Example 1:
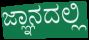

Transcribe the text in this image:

ಜ್ಞಾನದಲ್ಲಿ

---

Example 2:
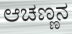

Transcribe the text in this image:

ಆಚಣ್ಣನ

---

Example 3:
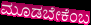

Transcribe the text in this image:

ಮೂಡಬೇಕೆಂಬ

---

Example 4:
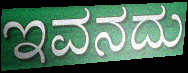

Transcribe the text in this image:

ಇವನದು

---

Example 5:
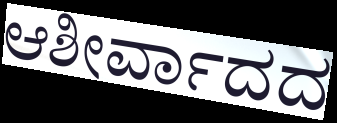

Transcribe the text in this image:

ಆಶೀರ್ವಾದದ